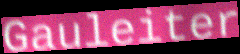
Gauleiter